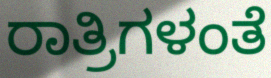
ರಾತ್ರಿಗಳಂತೆ